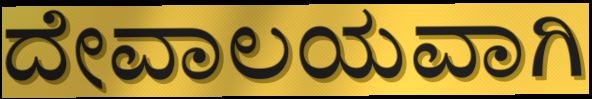
ದೇವಾಲಯವಾಗಿ